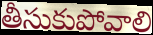
తీసుకుపోవాలి